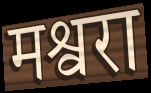
मश्वरा